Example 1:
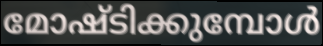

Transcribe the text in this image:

മോഷ്ടിക്കുമ്പോൾ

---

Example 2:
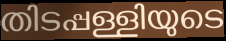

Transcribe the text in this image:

തിടപ്പള്ളിയുടെ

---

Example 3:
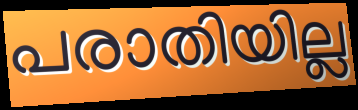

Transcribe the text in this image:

പരാതിയില്ല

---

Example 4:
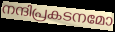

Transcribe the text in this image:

നന്ദിപ്രകടനമോ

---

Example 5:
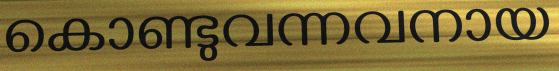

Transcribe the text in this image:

കൊണ്ടുവന്നവനായ